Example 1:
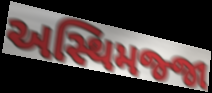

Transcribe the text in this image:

અસ્થિમજ્જા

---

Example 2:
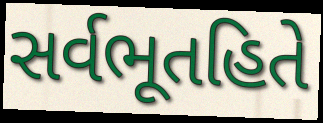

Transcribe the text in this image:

સર્વભૂતહિતે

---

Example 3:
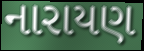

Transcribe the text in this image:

નારાયણ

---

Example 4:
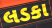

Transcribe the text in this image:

લડકા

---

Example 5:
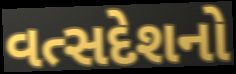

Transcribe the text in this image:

વત્સદેશનો